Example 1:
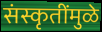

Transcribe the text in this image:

संस्कृतींमुळे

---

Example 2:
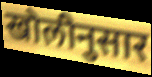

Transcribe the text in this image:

खोलीनुसार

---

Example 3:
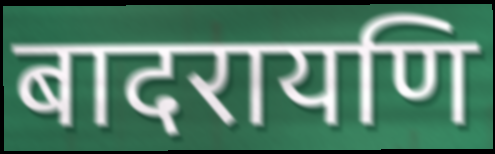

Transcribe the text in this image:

बादरायणि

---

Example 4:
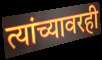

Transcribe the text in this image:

त्यांच्यावरही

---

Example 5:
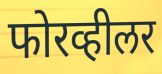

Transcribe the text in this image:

फोरव्हीलर